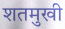
शतमुखी